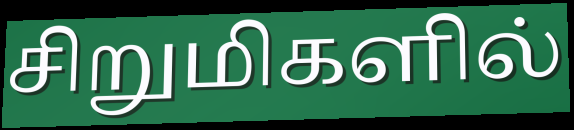
சிறுமிகளில்